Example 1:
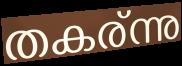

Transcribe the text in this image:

തകര്ന്നു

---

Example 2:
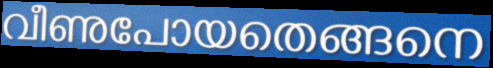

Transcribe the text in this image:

വീണുപോയതെങ്ങനെ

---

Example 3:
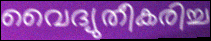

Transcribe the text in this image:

വൈദ്യുതീകരിച്ച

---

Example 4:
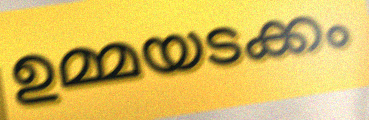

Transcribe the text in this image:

ഉമ്മയടക്കം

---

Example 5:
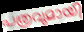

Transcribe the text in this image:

പത്രവുമായി